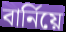
বার্নিয়ে